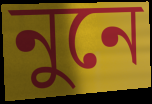
নুনে